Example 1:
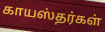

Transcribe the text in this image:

காயஸ்தர்கள்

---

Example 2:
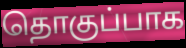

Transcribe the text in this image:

தொகுப்பாக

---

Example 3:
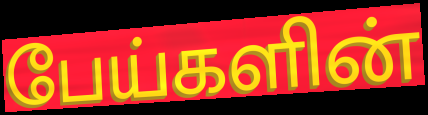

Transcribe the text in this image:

பேய்களின்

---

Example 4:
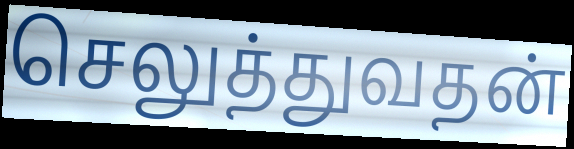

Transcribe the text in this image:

செலுத்துவதன்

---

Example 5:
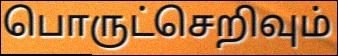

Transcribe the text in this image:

பொருட்செறிவும்